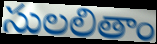
సులలితాం